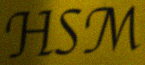
HSM